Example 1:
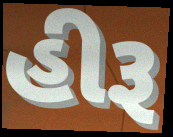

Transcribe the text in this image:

હીરૂ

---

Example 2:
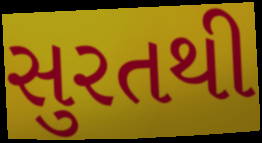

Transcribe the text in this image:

સુરતથી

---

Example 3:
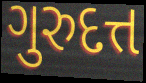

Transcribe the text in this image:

ગુરુદત્ત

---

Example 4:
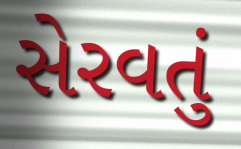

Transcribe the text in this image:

સેરવતું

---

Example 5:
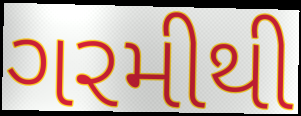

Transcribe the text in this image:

ગરમીથી